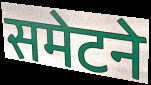
समेटने